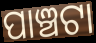
ପାଞ୍ଚଟା